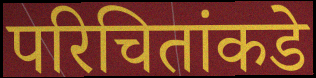
परिचितांकडे